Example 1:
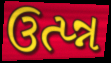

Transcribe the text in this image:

ઉત્પ્ન્ન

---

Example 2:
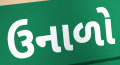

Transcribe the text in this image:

ઉનાળો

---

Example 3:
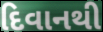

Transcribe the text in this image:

દિવાનથી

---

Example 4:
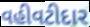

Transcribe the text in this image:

વહીવટીદાર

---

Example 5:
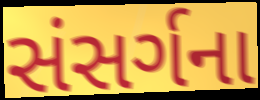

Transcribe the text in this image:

સંસર્ગના